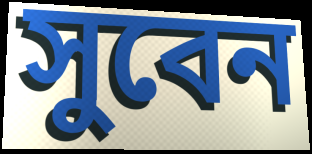
সুবেন